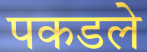
पकडले